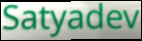
Satyadev